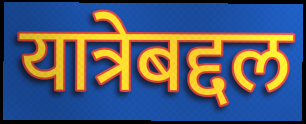
यात्रेबद्दल